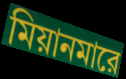
মিয়ানমারে